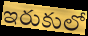
ఇరుకులో